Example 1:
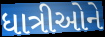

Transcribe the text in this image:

ધાત્રીઓને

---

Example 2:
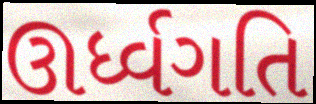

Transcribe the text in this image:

ઊર્ધ્વગતિ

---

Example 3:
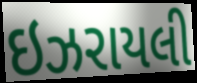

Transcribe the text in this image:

ઇઝરાયલી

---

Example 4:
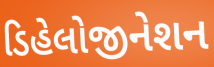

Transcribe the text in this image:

ડિહેલોજીનેશન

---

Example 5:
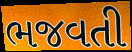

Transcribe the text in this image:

ભજવતી